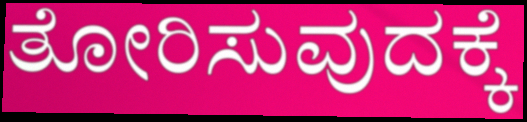
ತೋರಿಸುವುದಕ್ಕೆ